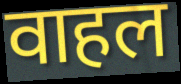
वाहल